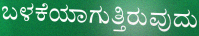
ಬಳಕೆಯಾಗುತ್ತಿರುವುದು